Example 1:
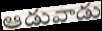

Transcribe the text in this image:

ఆడువాడు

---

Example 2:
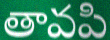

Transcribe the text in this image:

తావపి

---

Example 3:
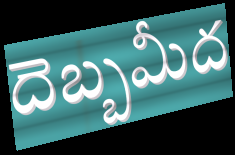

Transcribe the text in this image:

దెబ్బమీద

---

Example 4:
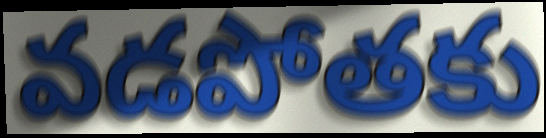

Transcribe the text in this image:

వడపోతకు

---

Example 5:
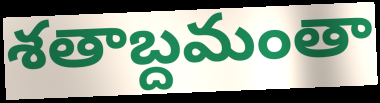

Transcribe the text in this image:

శతాబ్దమంతా